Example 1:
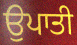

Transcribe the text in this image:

ਉਪਾਤੀ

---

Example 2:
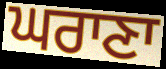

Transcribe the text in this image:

ਘਰਾਣਾ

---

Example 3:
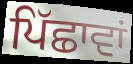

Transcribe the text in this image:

ਪਿੱਛਾਵਾਂ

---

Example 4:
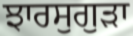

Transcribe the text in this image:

ਝਾਰਸੁਗੁੜਾ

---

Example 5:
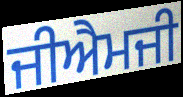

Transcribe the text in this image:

ਜੀਐਮਜੀ